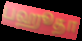
பஹூதா